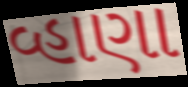
વ્હાણા